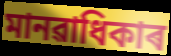
মানৱাধিকাৰ